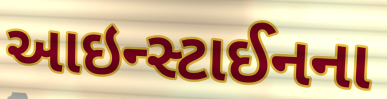
આઇન્સ્ટાઈનના